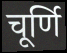
चूर्णि